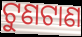
ଟୁଣଟାଣ